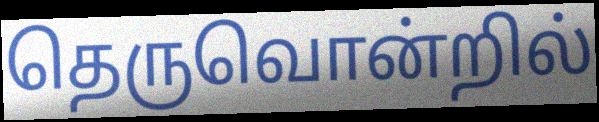
தெருவொன்றில்